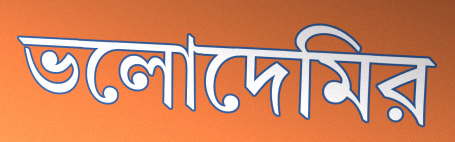
ভলোদেমির